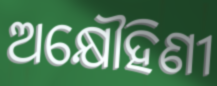
ଅକ୍ଷୌହିଣୀ